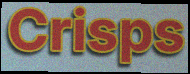
Crisps